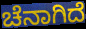
ಚೆನಾಗಿದೆ